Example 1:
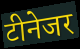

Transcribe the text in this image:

टीनेजर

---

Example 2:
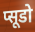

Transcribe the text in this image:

प्सूडो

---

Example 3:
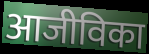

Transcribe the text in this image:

आजीविका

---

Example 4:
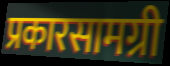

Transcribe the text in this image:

प्रकारसामग्री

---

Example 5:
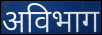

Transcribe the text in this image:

अविभाग